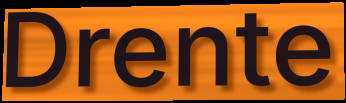
Drente